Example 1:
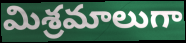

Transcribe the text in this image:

మిశ్రమాలుగా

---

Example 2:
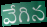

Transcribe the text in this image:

వేగిన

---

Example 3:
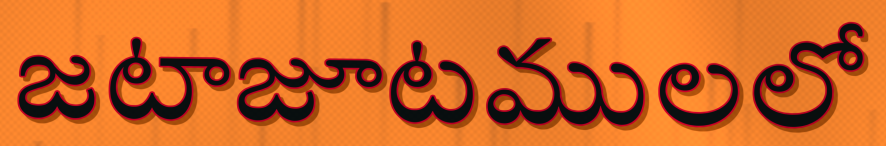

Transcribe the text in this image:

జటాజూటములలో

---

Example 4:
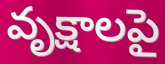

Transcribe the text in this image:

వృక్షాలపై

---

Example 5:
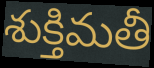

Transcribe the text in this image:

శుక్తిమతీ